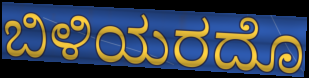
ಬಿಳಿಯರದೊ